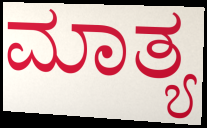
ಮಾತ್ಯ